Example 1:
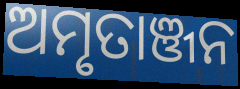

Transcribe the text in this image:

ଅମୃତାଞ୍ଜନ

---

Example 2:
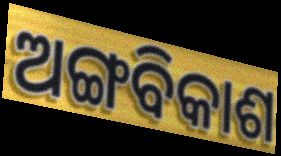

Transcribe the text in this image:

ଅଙ୍ଗବିକାଶ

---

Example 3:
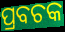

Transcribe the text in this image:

ପ୍ରବଚକ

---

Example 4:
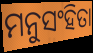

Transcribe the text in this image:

ମନୁସଂହିତା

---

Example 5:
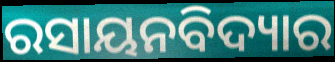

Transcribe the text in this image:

ରସାୟନବିଦ୍ୟାର